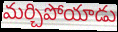
మర్చిపోయాడు